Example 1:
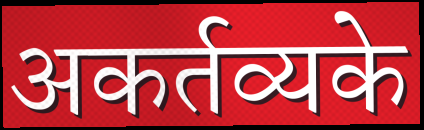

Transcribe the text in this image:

अकर्तव्यके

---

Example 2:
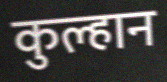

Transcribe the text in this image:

कुल्हान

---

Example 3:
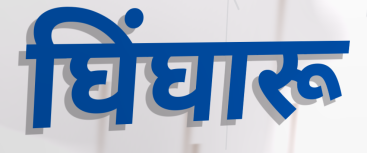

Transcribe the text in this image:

घिंघारू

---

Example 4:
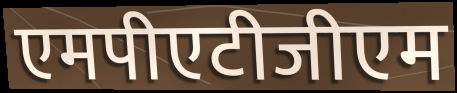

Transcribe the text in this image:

एमपीएटीजीएम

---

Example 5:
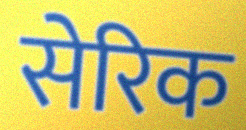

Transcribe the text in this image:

सेरिक